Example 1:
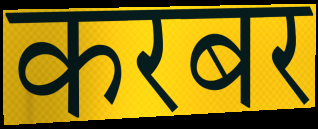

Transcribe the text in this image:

करबर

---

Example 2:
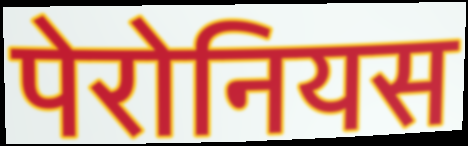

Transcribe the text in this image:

पेरोनियस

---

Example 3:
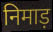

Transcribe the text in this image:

निमाड़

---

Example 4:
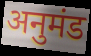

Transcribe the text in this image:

अनुमंड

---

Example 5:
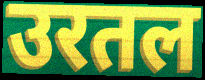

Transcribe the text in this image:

उरतल